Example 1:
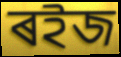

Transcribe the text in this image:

ৰইজ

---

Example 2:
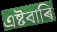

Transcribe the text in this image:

এষ্টবাৰি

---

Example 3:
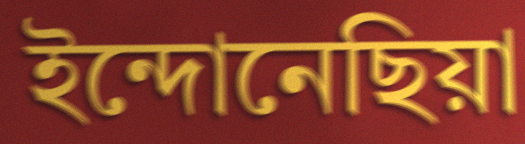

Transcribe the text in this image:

ইন্দোনেছিয়া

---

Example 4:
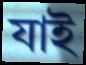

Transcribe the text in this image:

যাই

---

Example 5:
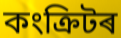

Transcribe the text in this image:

কংক্ৰিটৰ